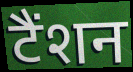
टैंशन